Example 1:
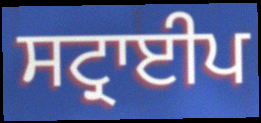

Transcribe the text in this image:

ਸਟ੍ਰਾਈਪ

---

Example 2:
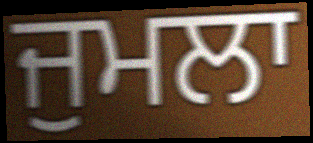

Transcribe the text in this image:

ਜੁਮਲਾ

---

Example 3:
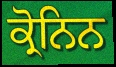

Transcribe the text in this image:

ਕ੍ਰੋਨਿਨ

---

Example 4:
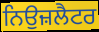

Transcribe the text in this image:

ਨਿਉਜ਼ਲੈਟਰ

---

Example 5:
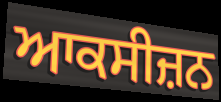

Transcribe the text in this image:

ਆਕਸੀਜ਼ਨ